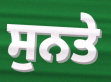
ਸੁਨਤੇ